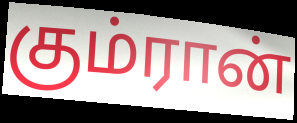
கும்ரான்